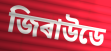
জিৰাউডে